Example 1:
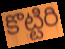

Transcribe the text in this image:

కొట్టిరి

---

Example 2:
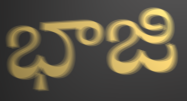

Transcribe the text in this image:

భాజి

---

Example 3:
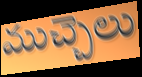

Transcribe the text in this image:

ముచ్చెలు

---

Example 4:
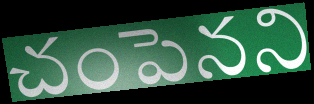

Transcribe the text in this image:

చంపెనని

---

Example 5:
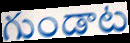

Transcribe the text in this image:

గుండాట